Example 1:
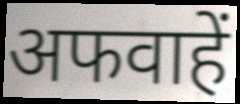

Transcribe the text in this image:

अफवाहें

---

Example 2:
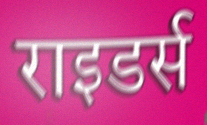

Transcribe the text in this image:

राइडर्स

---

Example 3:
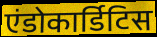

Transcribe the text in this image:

एंडोकार्डिटिस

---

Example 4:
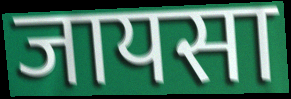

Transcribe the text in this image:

जायसा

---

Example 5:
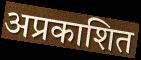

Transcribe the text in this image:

अप्रकाशित